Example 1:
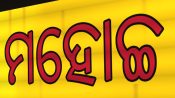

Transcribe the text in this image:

ମହୋଚ୍ଚ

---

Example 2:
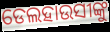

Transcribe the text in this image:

ଡେଲହାଉସୀଙ୍କୁ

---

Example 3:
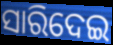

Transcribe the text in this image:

ସାରିଦେଇ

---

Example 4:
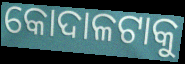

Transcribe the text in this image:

କୋଦାଳଟାକୁ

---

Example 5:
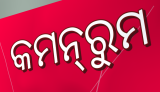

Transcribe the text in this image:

କମନ୍‌ରୁମ